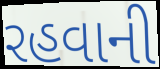
રહવાની